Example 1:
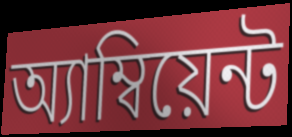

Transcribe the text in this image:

অ্যাম্বিয়েন্ট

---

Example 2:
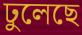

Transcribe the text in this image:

ঢুলেছে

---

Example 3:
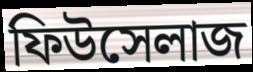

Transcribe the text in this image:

ফিউসেলাজ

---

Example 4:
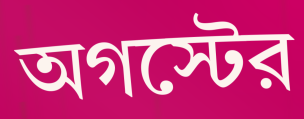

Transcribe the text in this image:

অগস্টের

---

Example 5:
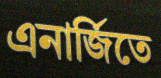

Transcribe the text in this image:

এনার্জিতে